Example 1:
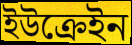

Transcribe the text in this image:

ইউক্রেইন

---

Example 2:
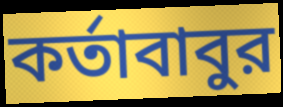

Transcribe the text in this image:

কর্তাবাবুর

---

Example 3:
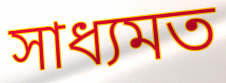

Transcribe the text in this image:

সাধ্যমত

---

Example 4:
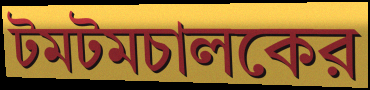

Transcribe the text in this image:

টমটমচালকের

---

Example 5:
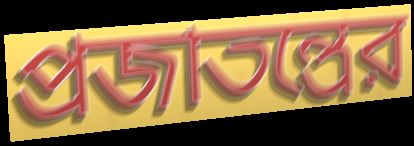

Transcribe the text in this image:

প্রজাতন্ত্রের